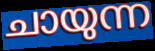
ചായുന്ന